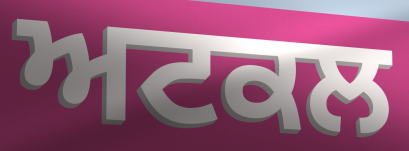
ਅਟਕਲ